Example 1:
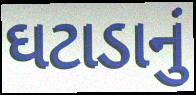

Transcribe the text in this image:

ઘટાડાનું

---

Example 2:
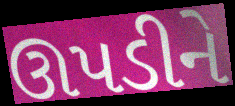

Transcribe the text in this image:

ઊપડીને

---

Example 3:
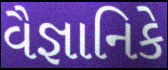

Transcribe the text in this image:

વૈજ્ઞાનિકે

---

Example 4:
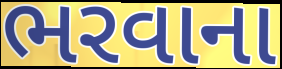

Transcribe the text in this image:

ભરવાના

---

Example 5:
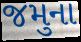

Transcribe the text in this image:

જમુના